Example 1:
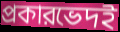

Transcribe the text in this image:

প্রকারভেদই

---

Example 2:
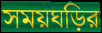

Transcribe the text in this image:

সময়ঘড়ির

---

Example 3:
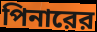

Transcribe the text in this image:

পিনারের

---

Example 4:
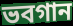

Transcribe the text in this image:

ভবগান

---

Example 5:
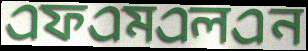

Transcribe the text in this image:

এফএমএলএন